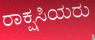
ರಾಕ್ಷಸಿಯರು